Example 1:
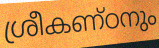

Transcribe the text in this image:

ശ്രീകണ്ഠനും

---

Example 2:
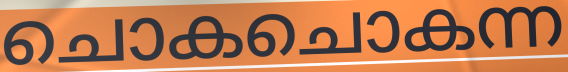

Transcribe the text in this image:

ചൊകചൊകന്ന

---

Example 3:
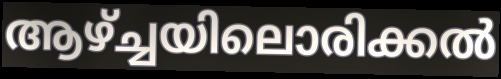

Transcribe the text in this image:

ആഴ്ച്ചയിലൊരിക്കൽ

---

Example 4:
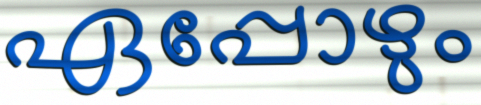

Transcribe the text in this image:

ഏപ്പോഴും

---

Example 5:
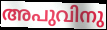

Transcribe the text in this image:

അപുവിനു